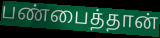
பண்பைத்தான்